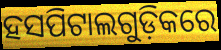
ହସପିଟାଲଗୁଡ଼ିକରେ